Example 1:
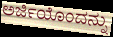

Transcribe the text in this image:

ಅರ್ಜಿಯೊಂದನ್ನು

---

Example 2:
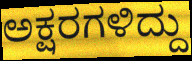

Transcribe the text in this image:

ಅಕ್ಷರಗಳಿದ್ದು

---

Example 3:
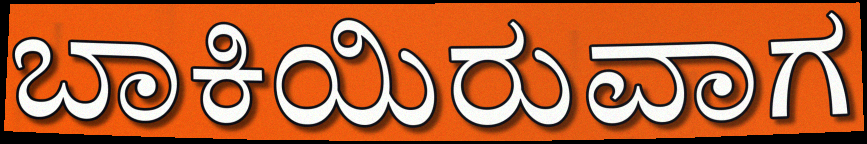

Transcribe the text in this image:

ಬಾಕಿಯಿರುವಾಗ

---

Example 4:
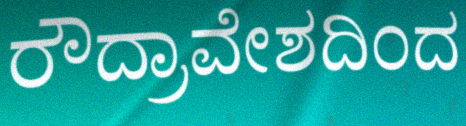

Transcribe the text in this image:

ರೌದ್ರಾವೇಶದಿಂದ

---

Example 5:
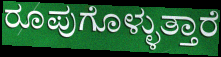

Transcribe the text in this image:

ರೂಪುಗೊಳ್ಳುತ್ತಾರೆ